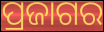
ପ୍ରଜାଗର